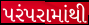
પરંપરામાંથી